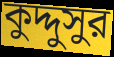
কুদ্দুসুর